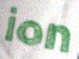
ion